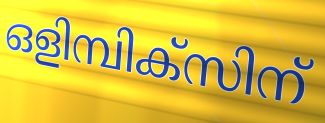
ഒളിമ്പിക്സിന്